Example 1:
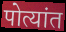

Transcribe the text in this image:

पोत्यांत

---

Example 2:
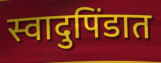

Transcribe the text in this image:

स्वादुपिंडात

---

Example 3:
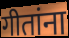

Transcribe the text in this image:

गीतांना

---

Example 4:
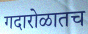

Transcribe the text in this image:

गदारोळातच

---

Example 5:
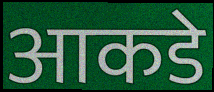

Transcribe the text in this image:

आकडे